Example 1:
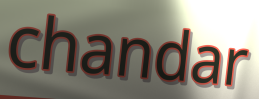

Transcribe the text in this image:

chandar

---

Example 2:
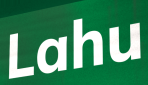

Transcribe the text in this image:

Lahu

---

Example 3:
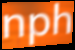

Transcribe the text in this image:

nph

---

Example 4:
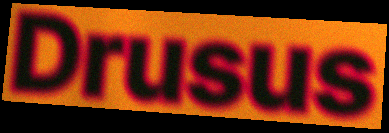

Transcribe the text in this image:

Drusus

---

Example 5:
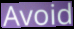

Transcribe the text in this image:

Avoid